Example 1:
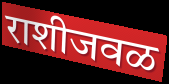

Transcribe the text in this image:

राशीजवळ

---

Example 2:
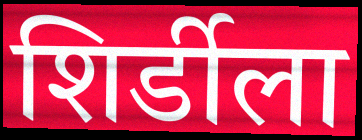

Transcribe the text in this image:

शिर्डीला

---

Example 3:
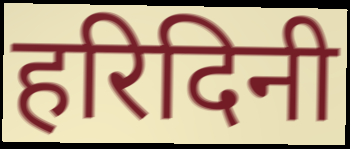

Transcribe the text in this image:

हरिदिनी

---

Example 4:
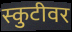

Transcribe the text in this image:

स्कुटीवर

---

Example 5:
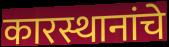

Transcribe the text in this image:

कारस्थानांचे